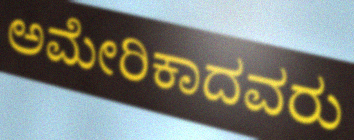
ಅಮೇರಿಕಾದವರು